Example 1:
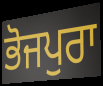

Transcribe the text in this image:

ਭੋਜਪੁਰਾ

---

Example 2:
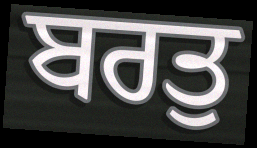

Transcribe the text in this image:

ਬਰਤੁ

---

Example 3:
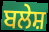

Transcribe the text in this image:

ਬਲੇਸ਼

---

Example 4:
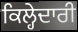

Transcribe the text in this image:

ਕਿਲ੍ਹੇਦਾਰੀ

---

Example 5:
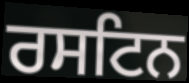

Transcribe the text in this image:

ਰਸਟਿਨ